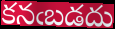
కనఁబడదు